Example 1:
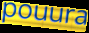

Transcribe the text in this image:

pouura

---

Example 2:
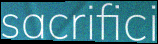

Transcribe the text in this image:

sacrifici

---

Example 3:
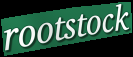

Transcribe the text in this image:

rootstock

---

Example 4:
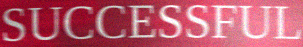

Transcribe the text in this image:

SUCCESSFUL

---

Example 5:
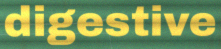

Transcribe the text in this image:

digestive